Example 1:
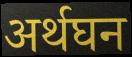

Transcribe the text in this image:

अर्थघन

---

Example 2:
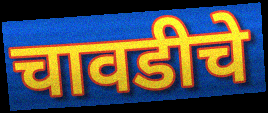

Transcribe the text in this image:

चावडीचे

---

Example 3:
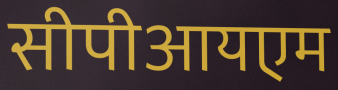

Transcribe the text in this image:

सीपीआयएम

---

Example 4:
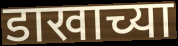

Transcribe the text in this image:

डाखाच्या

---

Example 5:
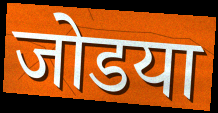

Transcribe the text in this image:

जोडया